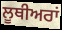
ਲੂਥੀਅਰਾਂ